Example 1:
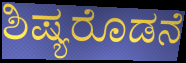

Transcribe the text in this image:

ಶಿಷ್ಯರೊಡನೆ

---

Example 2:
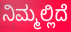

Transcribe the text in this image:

ನಿಮ್ಮಲ್ಲಿದೆ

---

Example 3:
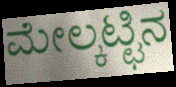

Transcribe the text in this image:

ಮೇಲ್ಕಟ್ಟಿನ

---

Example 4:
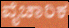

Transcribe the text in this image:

ವೈಚಾರಿಕ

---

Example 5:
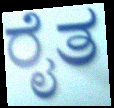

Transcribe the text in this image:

ರೈತ